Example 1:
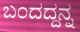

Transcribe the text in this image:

ಬಂದದ್ದನ್ನ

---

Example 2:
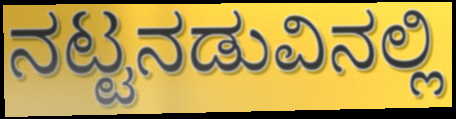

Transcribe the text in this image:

ನಟ್ಟನಡುವಿನಲ್ಲಿ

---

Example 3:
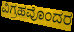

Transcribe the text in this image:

ವಿಗ್ರಹವೊಂದರ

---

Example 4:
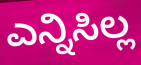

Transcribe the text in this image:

ಎನ್ನಿಸಿಲ್ಲ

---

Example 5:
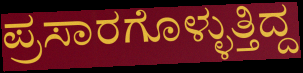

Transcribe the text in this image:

ಪ್ರಸಾರಗೊಳ್ಳುತ್ತಿದ್ದ